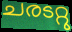
ചരടറ്റു